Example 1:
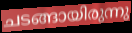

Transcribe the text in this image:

ചടങ്ങായിരുന്നു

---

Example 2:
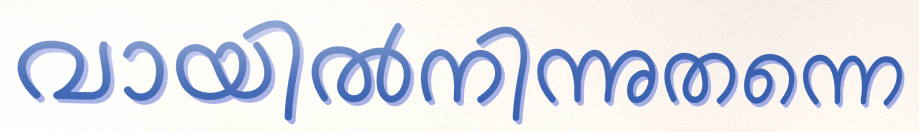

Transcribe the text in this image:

വായിൽനിന്നുതന്നെ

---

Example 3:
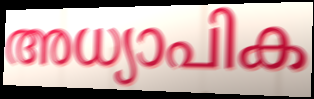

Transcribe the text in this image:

അധ്യാപിക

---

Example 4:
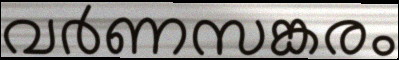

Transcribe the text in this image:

വർണസങ്കരം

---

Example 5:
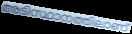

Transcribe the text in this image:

അടിസ്ഥാനത്തിലാണ്